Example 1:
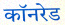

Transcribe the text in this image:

कॉनरेड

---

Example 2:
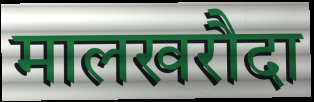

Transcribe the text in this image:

मालखरौदा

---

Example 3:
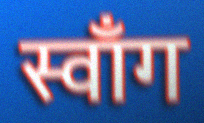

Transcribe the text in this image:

स्वाँग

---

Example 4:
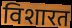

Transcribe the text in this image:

विशारत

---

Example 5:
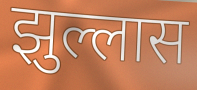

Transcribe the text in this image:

झुल्लास